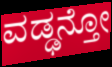
ವಡ್ಢನ್ತೋ